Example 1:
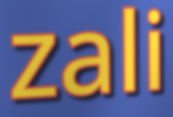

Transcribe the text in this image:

zali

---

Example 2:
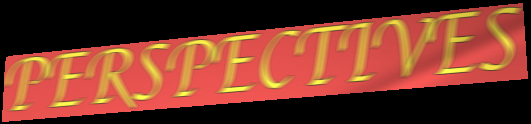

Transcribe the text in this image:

PERSPECTIVES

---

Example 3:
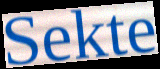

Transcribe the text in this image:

Sekte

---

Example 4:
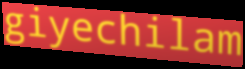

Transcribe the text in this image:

giyechilam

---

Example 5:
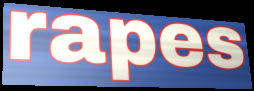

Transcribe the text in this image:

rapes